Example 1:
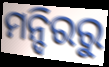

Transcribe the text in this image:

ମନ୍ଦିରରୁ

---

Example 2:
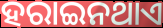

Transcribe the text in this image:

ହରାଇନଥାଏ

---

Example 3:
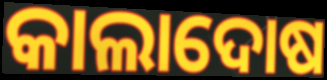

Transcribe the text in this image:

କାଲାଦୋଷ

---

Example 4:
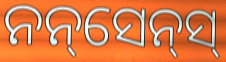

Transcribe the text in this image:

ନନ୍‌ସେନ୍‌ସ୍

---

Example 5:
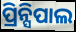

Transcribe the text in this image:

ପ୍ରିନ୍ସିପାଲ